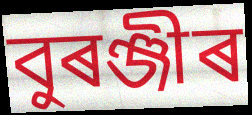
বুৰঞ্জীৰ